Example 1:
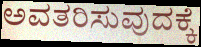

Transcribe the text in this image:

ಅವತರಿಸುವುದಕ್ಕೆ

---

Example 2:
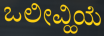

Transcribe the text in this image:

ಒಲೀವ್ಹಿಯೆ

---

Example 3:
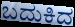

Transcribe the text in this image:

ಬದುಕಿದ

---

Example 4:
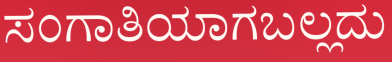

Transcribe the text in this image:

ಸಂಗಾತಿಯಾಗಬಲ್ಲದು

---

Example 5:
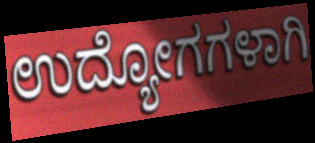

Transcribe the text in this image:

ಉದ್ಯೋಗಗಳಾಗಿ